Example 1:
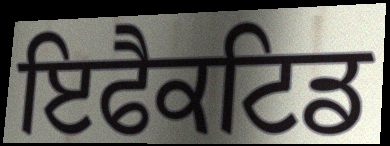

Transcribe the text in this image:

ਇਫੈਕਟਿਡ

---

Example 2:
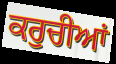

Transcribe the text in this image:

ਕਰੁਚੀਆਂ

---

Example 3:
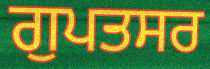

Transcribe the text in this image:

ਗੁਪਤਸਰ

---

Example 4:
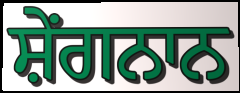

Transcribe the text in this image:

ਸ਼ੇਂਗਨਾਨ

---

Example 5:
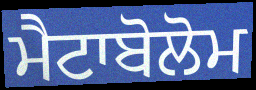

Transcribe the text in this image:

ਮੈਟਾਬੋਲੋਮ